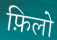
फ़िलो